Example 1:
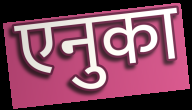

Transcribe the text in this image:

एनुका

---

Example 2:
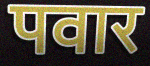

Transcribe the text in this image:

पवार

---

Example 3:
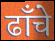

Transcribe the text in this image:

ढाँचे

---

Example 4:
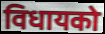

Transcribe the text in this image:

विधायको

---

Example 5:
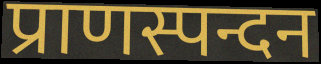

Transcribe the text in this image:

प्राणस्पन्दन